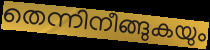
തെന്നിനീങ്ങുകയും